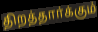
திறத்தார்க்கும்